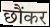
छौंकर